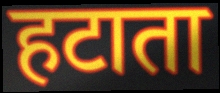
हटाता